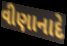
વીણાનાદે